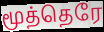
மூத்தெரே